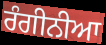
ਰੰਗੀਨੀਆ